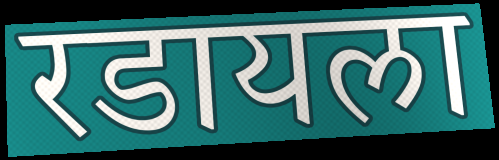
रडायला